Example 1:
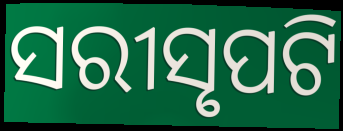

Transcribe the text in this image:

ସରୀସୃପଟି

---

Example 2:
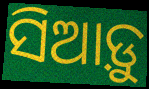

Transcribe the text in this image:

ସିଆଡ଼ୁ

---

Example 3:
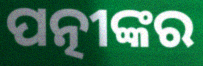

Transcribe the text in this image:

ପତ୍ନୀଙ୍କର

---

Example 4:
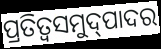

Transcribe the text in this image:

ପ୍ରତିତ୍ଵସମୁଦ୍‌ପାଦର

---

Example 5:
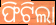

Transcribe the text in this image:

ଫିଟିଲା